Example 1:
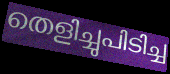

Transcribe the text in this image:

തെളിച്ചുപിടിച്ച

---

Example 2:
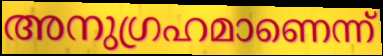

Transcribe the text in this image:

അനുഗ്രഹമാണെന്ന്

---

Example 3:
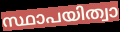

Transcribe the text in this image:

സ്ഥാപയിത്വാ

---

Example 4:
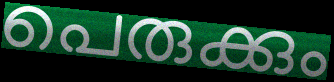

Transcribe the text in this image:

പെരുക്കും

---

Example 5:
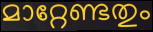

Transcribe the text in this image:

മാറ്റേണ്ടതും